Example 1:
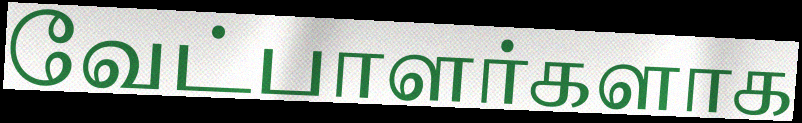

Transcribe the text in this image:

வேட்பாளர்களாக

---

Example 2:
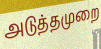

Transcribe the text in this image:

அடுத்தமுறை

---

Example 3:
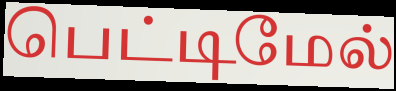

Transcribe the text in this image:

பெட்டிமேல்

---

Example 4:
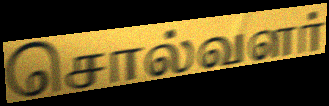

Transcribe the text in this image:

சொல்வளர்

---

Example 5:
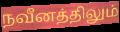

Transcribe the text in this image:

நவீனத்திலும்